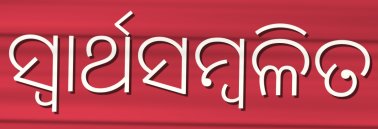
ସ୍ଵାର୍ଥସମ୍ବଳିତ